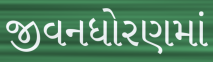
જીવનધોરણમાં